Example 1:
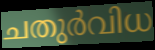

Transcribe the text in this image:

ചതുർവിധ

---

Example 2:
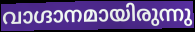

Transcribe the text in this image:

വാഗ്ദാനമായിരുന്നു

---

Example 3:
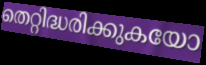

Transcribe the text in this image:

തെറ്റിദ്ധരിക്കുകയോ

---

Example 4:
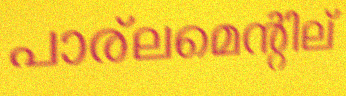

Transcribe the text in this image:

പാര്ലമെന്റില്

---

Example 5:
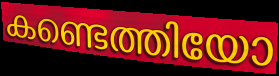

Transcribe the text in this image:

കണ്ടെത്തിയോ